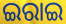
ଇରାଇ